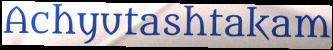
Achyutashtakam